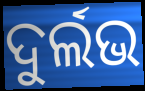
ଦୁର୍ଲଭ